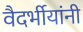
वैदर्भीयांनी